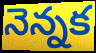
నెన్నక